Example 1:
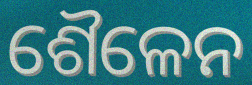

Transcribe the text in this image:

ଶୈଳେନ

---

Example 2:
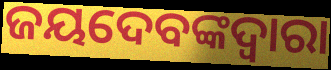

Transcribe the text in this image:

ଜୟଦେବଙ୍କଦ୍ୱାରା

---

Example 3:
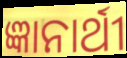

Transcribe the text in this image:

ଜ୍ଞାନାର୍ଥୀ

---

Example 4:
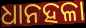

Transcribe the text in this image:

ଧାନହଳା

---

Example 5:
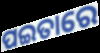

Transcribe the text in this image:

ପଇତାରେ